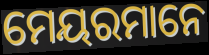
ମେୟରମାନେ